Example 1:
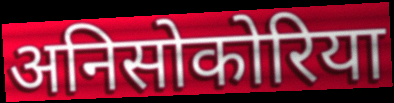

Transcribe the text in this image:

अनिसोकोरिया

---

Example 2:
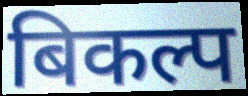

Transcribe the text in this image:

बिकल्प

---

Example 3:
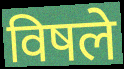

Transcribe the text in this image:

विषले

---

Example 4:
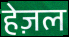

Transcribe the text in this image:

हेज़ल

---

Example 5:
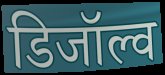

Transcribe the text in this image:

डिजॉल्व